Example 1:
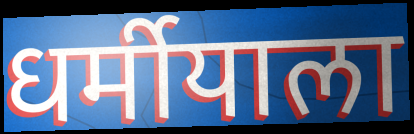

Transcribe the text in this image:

धर्मीयाला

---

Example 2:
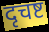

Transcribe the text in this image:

दृचष्ट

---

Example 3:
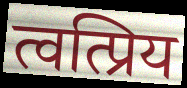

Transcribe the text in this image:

त्वत्प्रिय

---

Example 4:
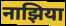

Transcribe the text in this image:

नाझिया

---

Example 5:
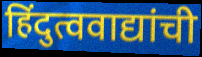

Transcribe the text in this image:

हिंदुत्ववाद्यांची